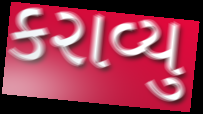
કરાવ્યુ